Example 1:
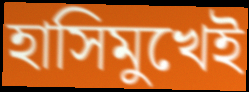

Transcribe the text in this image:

হাসিমুখেই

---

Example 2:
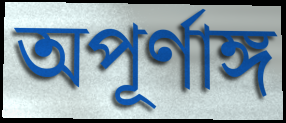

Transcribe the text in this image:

অপূর্ণাঙ্গ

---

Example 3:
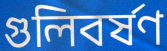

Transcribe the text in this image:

গুলিবর্ষণ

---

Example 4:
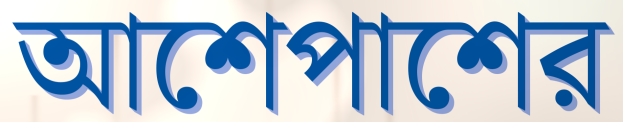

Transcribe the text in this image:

আশেপাশের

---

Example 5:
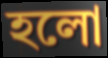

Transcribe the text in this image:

হলো